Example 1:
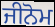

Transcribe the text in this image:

ਜੀਨੋਮ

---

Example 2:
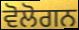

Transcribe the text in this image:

ਵੋਲੋਗਨ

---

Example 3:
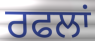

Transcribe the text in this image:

ਰਫਲਾਂ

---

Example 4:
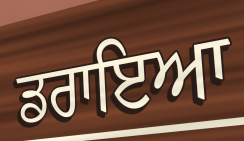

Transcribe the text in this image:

ਡਰਾਇਆ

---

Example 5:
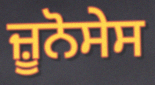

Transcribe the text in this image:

ਜ਼ੂਨੋਸੇਸ